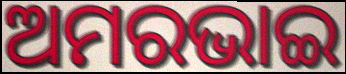
ଅମରଭାଇ